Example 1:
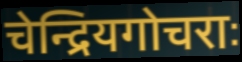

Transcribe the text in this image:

चेन्द्रियगोचराः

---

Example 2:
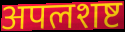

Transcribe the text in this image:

अपलशष्ट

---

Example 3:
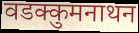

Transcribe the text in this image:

वडक्कुमनाथन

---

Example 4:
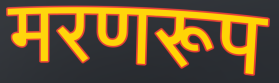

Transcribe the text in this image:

मरणरूप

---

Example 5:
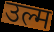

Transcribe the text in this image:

उल्म